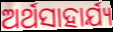
ଅର୍ଥସାହାର୍ଯ୍ୟ